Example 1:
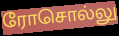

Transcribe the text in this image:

ரோசொல்லு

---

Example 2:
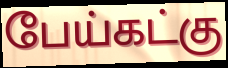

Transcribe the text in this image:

பேய்கட்கு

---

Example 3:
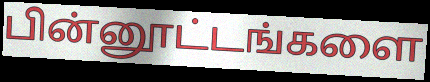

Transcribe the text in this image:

பின்னூட்டங்களை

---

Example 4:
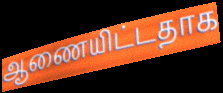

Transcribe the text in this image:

ஆணையிட்டதாக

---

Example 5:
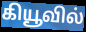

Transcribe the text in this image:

கியூவில்